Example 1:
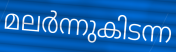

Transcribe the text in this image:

മലർന്നുകിടന്ന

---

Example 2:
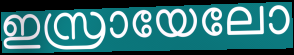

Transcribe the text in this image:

ഇസ്രായേലോ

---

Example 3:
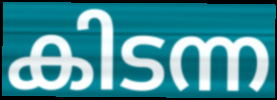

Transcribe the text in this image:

കിടന്ന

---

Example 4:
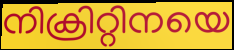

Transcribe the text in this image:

നിക്രിറ്റിനയെ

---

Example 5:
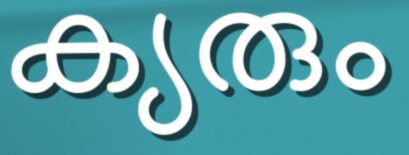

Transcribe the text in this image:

ക്യരും